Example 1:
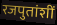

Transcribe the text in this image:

रजपुतांशीं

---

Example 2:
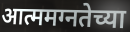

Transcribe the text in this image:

आत्ममग्नतेच्या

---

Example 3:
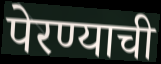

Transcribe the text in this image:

पेरण्याची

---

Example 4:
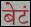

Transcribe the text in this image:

बेटं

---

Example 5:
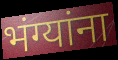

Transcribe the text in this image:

भंग्यांना